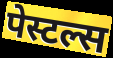
पेस्टल्स